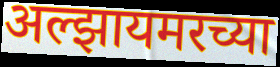
अल्झायमरच्या